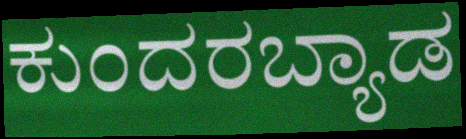
ಕುಂದರಬ್ಯಾಡ